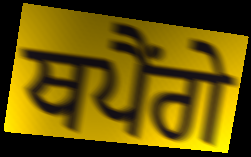
ਥਪੈਂਗੇ